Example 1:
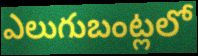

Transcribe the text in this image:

ఎలుగుబంట్లలో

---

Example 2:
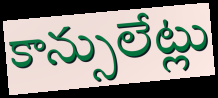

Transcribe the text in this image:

కాన్సులేట్లు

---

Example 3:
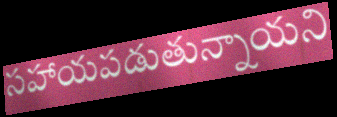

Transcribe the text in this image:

సహాయపడుతున్నాయని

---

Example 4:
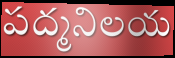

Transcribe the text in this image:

పద్మనిలయ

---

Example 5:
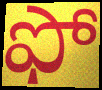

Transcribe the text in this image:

ఫో